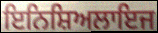
ਇਨਿਸ਼ਿਅਲਾਇਜ